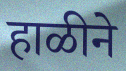
हाळीने